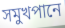
সমুখপানে